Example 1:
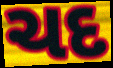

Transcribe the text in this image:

ચદ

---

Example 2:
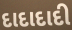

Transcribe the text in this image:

દાદાદાદી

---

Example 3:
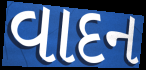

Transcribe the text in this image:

વાદન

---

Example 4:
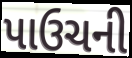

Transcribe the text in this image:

પાઉચની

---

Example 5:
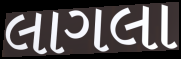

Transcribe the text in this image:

લાગલા